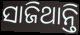
ସାଜିଥାନ୍ତି